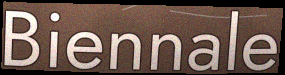
Biennale